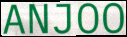
ANJOO